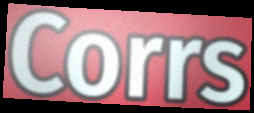
Corrs